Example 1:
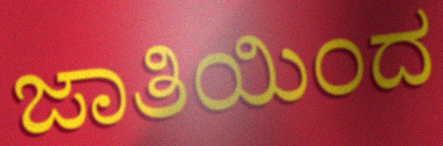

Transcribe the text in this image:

ಜಾತಿಯಿಂದ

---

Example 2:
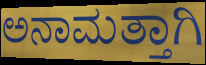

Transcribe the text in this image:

ಅನಾಮತ್ತಾಗಿ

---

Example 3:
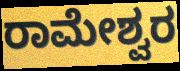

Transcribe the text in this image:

ರಾಮೇಶ್ವರ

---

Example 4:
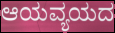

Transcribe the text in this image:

ಆಯವ್ಯಯದ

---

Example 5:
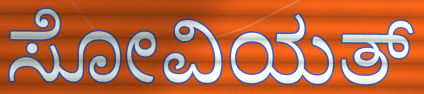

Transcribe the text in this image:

ಸೋವಿಯತ್